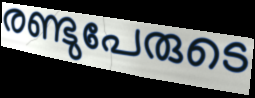
രണ്ടുപേരുടെ